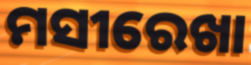
ମସୀରେଖା